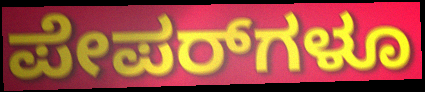
ಪೇಪರ್‌ಗಳೂ